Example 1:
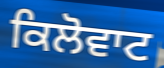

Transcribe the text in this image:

ਕਿਲੋਵਾਟ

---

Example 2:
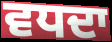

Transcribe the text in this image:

ਵਧਦਾ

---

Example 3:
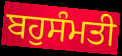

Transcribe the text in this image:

ਬਹੁਸੰਮਤੀ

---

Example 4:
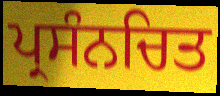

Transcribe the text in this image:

ਪ੍ਰਸੰਨਚਿਤ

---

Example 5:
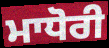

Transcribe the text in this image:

ਮਾਧੋਰੀ